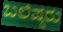
ಬಲಿಷ್ಠರು